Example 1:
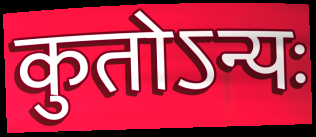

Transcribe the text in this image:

कुतोऽन्यः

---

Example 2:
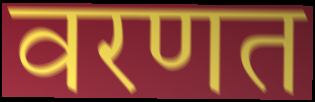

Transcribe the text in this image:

वरणत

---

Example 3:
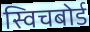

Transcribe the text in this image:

स्विचबोर्ड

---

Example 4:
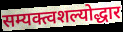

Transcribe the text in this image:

सम्यक्त्वशल्योद्धार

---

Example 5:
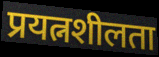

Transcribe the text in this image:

प्रयत्नशीलता